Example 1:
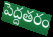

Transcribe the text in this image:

పెద్దతరం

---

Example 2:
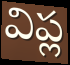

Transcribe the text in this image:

విప్ల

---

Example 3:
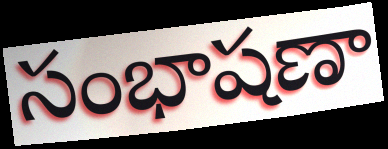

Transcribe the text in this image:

సంభాషణా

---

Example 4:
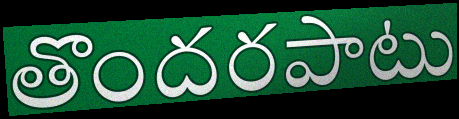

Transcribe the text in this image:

తొందరపాటు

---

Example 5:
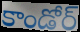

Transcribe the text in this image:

కాండోర్